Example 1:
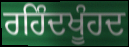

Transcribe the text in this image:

ਰਹਿੰਦਖੂੰਹਦ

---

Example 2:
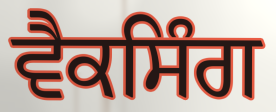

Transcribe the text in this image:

ਵੈਕਸਿੰਗ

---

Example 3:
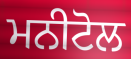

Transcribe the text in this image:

ਮਨੀਟੋਲ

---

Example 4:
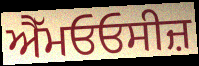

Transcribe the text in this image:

ਐੱਮਓਓਸੀਜ਼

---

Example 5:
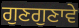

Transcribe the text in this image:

ਗੁਣਗੁਣਾਵੇ